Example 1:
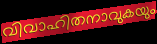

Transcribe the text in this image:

വിവാഹിതനാവുകയും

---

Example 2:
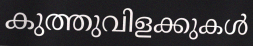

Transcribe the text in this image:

കുത്തുവിളക്കുകൾ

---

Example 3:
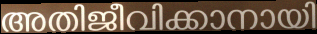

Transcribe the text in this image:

അതിജീവിക്കാനായി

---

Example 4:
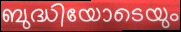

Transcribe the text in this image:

ബുദ്ധിയോടെയും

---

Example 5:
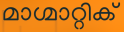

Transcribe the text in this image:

മാഗ്മാറ്റിക്